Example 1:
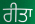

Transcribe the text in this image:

ਰੀਤਾ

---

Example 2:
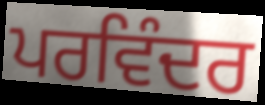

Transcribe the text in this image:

ਪਰਵਿੰਦਰ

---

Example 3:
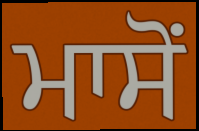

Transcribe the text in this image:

ਮਾਸੋਂ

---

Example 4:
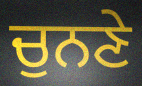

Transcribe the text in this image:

ਚੁਨਣੇ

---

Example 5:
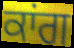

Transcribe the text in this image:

ਕਾਂਗ